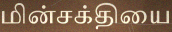
மின்சக்தியை